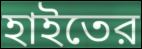
হাইতের